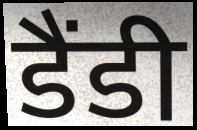
डैंडी